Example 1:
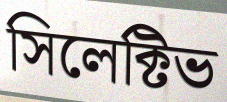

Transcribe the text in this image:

সিলেক্টিভ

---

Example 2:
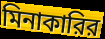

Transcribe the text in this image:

মিনাকারির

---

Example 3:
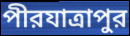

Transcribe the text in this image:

পীরযাত্রাপুর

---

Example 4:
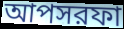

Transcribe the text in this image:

আপসরফা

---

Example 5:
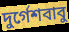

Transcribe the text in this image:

দুর্গেশবাবু